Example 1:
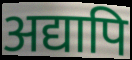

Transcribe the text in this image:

अद्यापि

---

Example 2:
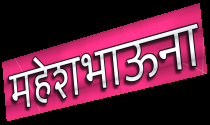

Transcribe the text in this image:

महेशभाऊना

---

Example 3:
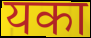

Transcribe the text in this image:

यका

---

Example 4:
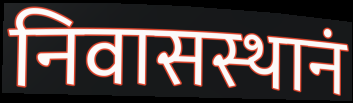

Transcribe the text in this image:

निवासस्थानं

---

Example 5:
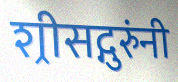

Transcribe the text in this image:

श्रीसद्गुरुंनी